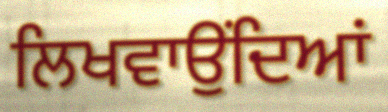
ਲਿਖਵਾਉਂਦਿਆਂ